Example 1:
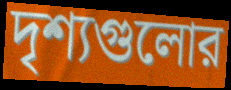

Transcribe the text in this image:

দৃশ্যগুলোর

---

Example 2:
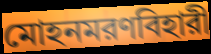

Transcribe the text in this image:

মোহনমরণবিহারী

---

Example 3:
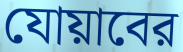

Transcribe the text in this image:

যোয়াবের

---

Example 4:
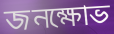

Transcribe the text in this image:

জনক্ষোভ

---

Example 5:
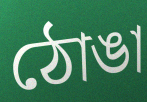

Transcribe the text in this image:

ঠোঙা